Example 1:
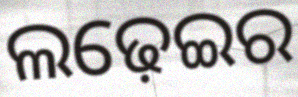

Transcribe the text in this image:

ଲଢ଼େଇର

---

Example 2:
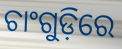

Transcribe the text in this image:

ଚାଂଗୁଡ଼ିରେ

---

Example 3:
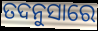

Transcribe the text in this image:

ତଦନୁସାରେ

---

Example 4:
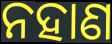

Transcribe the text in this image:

ନହାଣ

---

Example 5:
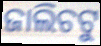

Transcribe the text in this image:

ଜାଲିଚଟୁ